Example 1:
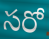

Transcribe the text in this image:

సరో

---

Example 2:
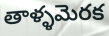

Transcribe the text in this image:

తాళ్ళమెరక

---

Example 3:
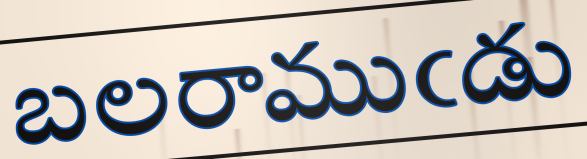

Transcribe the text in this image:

బలరాముఁడు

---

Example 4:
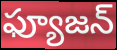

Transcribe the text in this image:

ఫ్యూజన్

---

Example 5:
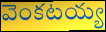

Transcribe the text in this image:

వెంకటయ్య